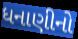
ધનાણીનો